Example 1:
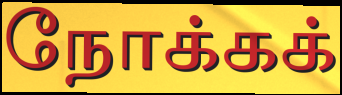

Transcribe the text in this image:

நோக்கக்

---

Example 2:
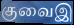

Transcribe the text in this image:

குவைஇ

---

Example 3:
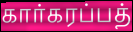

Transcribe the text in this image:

கார்கரப்பத்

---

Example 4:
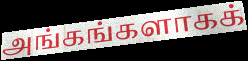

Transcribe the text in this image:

அங்கங்களாகக்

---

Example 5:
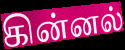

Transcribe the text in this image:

கின்னல்